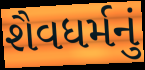
શૈવધર્મનું